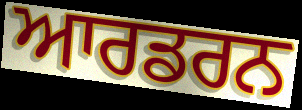
ਆਰਡਰਨ